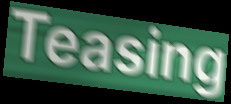
Teasing